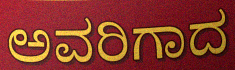
ಅವರಿಗಾದ